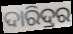
ଦାରିଦ୍ରର